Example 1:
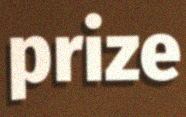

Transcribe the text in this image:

prize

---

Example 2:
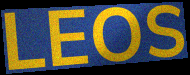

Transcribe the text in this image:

LEOS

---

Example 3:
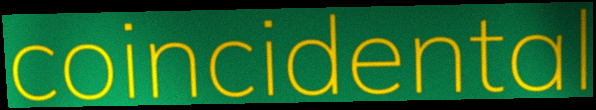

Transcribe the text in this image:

coincidental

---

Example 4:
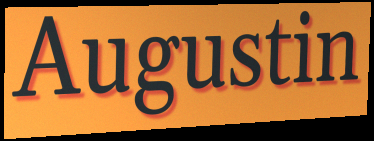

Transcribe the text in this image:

Augustin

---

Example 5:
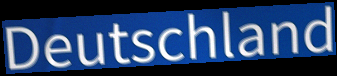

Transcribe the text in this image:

Deutschland